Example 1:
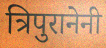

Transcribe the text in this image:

त्रिपुरानेनी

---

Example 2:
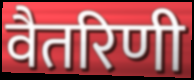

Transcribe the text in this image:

वैतरिणी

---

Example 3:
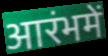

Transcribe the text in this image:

आरंभमें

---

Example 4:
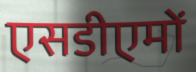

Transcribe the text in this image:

एसडीएमों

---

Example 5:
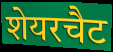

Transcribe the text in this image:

शेयरचैट